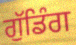
ਗੁੱਡਿੰਗ